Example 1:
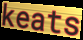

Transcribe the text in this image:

keats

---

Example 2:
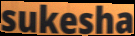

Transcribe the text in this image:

sukesha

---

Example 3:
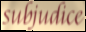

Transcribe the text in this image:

subjudice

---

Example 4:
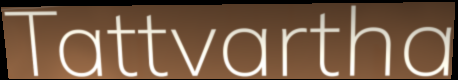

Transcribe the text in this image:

Tattvartha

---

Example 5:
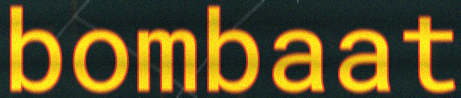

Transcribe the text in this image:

bombaat